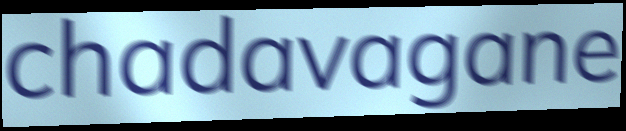
chadavagane